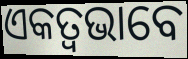
ଏକତ୍ଵଭାବେ